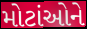
મોટાંઓને